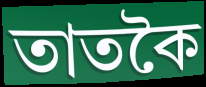
তাতকৈ